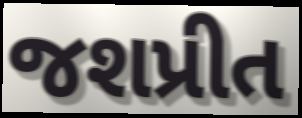
જશપ્રીત